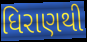
ધિરાણથી